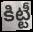
కిట్టీ